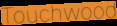
Touchwood